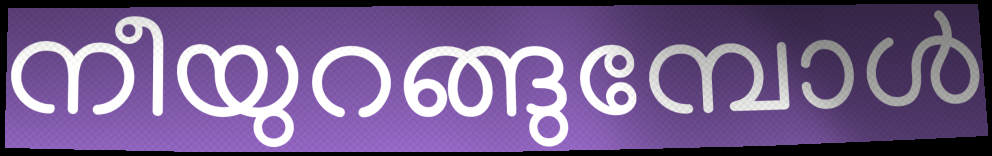
നീയുറങ്ങുമ്പോൾ